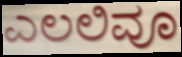
ಎಲಲಿವೂ